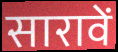
सारावें